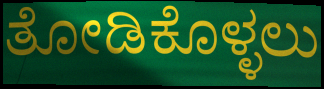
ತೋಡಿಕೊಳ್ಳಲು